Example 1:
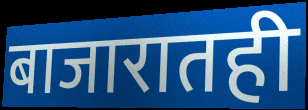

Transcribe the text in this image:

बाजारातही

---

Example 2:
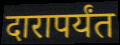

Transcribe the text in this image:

दारापर्यंत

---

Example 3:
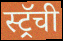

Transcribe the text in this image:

स्ट्रॅची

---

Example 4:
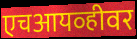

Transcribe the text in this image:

एचआयव्हीवर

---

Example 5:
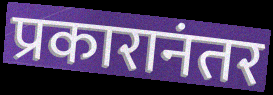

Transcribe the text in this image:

प्रकारानंतर